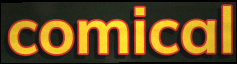
comical